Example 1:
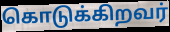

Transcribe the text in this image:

கொடுக்கிறவர்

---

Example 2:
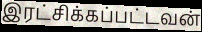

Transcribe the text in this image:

இரட்சிக்கப்பட்டவன்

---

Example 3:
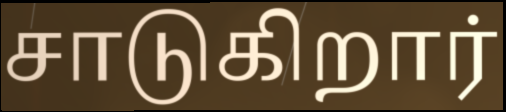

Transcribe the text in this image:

சாடுகிறார்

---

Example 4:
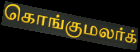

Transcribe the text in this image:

கொங்குமலர்க்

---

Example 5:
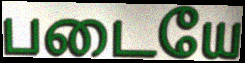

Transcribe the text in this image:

படையே